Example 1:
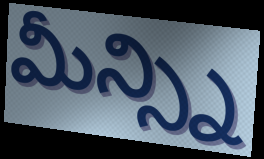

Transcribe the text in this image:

మీన్స్ని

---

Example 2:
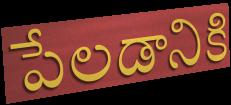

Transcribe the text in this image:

పేలడానికి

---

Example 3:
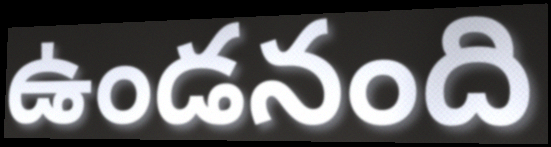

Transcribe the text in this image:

ఉండనంది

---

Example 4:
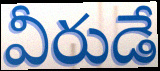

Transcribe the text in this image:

వీరుడే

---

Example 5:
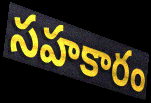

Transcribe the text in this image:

సహకారం